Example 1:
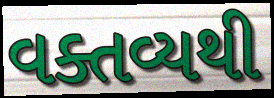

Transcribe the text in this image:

વક્તવ્યથી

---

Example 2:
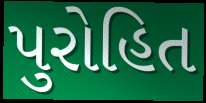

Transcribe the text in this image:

પુરોહિત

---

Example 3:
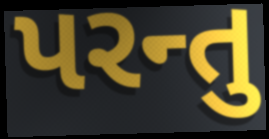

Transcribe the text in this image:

પરન્તુ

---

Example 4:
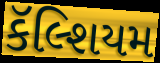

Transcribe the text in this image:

કૅલ્શિયમ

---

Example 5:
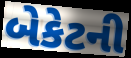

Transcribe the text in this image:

બેકેટની